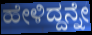
ಹೇಳಿದ್ದನ್ನೇ